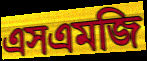
এসএমজি